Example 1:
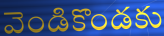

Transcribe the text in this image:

వెండికొండకు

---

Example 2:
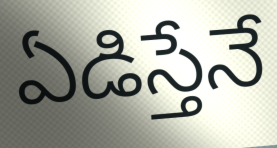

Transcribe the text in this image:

ఏడిస్తేనే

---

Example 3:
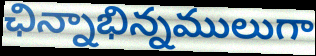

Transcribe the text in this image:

ఛిన్నాభిన్నములుగా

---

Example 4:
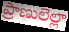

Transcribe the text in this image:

ప్రాణులెల్లా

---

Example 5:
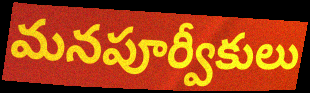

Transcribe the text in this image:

మనపూర్వీకులు